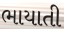
ભાયાતી